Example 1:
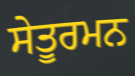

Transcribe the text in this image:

ਸੇਤੂਰਮਨ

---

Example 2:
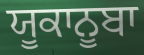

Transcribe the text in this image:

ਯੂਕਾਨੂਬਾ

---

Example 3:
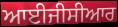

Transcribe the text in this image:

ਆਈਜੀਸੀਆਰ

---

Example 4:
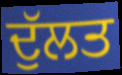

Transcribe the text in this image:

ਦੁੱਲਤ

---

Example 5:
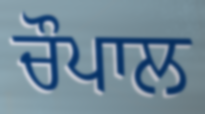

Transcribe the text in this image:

ਚੌਪਾਲ